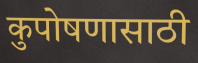
कुपोषणासाठी